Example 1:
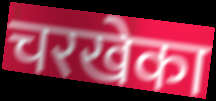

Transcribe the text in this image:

चरखेका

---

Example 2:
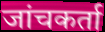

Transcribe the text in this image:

जांचकर्ता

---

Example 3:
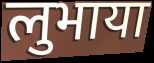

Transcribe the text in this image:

लुभाया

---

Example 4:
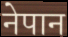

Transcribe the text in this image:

नेपान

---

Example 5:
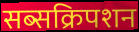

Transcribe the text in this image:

सब्सक्रिपशन